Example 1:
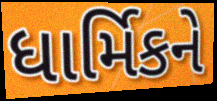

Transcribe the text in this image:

ધાર્મિકને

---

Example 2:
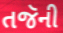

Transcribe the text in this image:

તજૅની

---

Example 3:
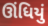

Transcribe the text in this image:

ઊંધિયું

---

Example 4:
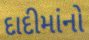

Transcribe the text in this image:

દાદીમાંનો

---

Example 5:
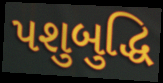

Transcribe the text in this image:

પશુબુદ્ધિ